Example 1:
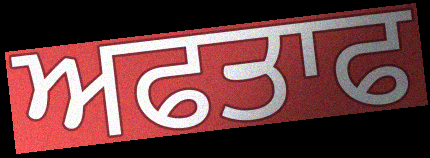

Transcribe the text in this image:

ਅਫਤਾਫ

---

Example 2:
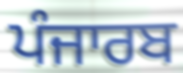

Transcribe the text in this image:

ਪੰਜਾਰਬ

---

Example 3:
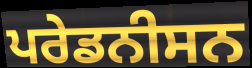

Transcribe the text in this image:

ਪਰੇਡਨੀਸਨ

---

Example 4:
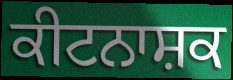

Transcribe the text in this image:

ਕੀਟਨਾਸ਼ਕ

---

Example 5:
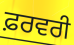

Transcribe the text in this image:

ਫ਼ਰਵਰੀ